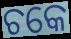
ଚକେ